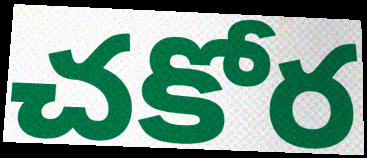
చకోర